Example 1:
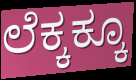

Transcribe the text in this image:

ಲೆಕ್ಕಕ್ಕೂ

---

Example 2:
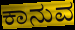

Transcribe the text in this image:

ಕಾನುವ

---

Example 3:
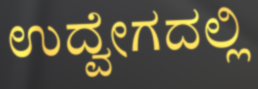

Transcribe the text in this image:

ಉದ್ವೇಗದಲ್ಲಿ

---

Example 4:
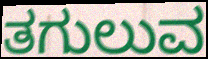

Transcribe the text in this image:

ತಗುಲುವ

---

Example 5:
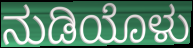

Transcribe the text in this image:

ನುಡಿಯೊಳು